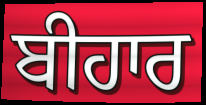
ਬੀਹਾਰ